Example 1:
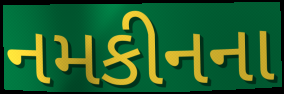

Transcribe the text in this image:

નમકીનના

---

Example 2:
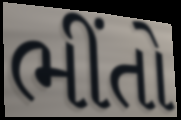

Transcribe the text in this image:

ભીંતો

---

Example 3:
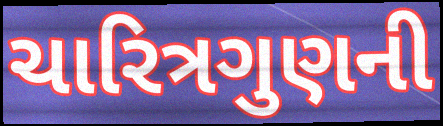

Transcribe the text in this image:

ચારિત્રગુણની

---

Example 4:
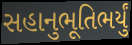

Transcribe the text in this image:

સહાનુભૂતિભર્યું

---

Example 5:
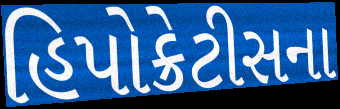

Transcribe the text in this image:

હિપોક્રેટીસના